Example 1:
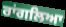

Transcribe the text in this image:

ਰਾਂਗਲਿਆ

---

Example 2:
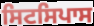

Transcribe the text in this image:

ਸਿਟਸਿਪਾਸ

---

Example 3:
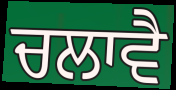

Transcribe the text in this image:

ਚਲਾਵੈ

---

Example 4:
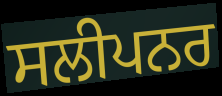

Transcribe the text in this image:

ਸਲੀਪਨਰ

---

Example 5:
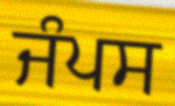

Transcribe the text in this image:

ਜੰਪਸ